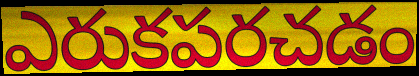
ఎరుకపరచడం